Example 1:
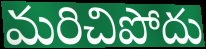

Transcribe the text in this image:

మరిచిపోదు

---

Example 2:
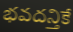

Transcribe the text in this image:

భవదన్తికే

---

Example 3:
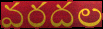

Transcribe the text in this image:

వరదల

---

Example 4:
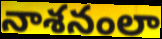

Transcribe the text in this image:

నాశనంలా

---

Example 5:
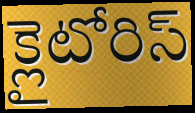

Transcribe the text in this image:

క్లైటోరిస్